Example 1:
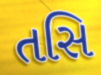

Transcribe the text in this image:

તસિ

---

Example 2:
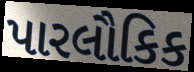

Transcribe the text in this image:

પારલૌકિક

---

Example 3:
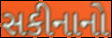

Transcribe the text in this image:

સકીનાનો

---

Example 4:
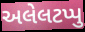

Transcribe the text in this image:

અલેલટપ્પુ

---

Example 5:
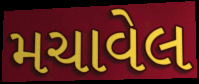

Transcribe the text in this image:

મચાવેલ